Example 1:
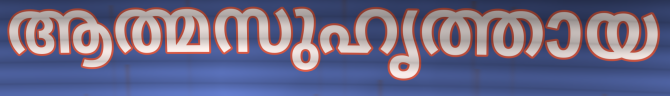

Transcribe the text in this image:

ആത്മസുഹൃത്തായ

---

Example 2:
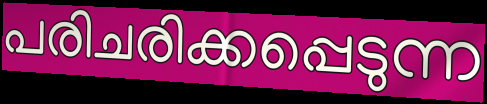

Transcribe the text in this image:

പരിചരിക്കപ്പെടുന്ന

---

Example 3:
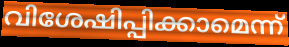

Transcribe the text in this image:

വിശേഷിപ്പിക്കാമെന്ന്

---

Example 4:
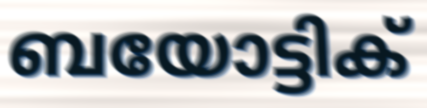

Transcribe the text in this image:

ബയോട്ടിക്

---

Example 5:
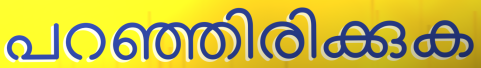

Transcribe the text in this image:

പറഞ്ഞിരിക്കുക